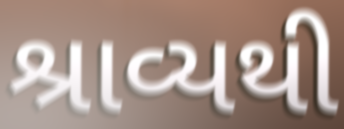
શ્રાવ્યથી